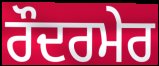
ਰੌਦਰਮੇਰ